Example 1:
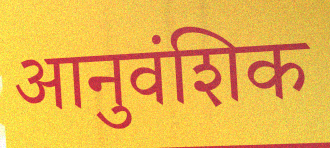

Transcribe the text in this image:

आनुवंशिक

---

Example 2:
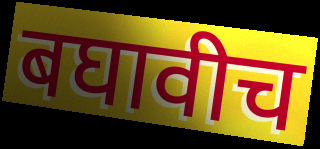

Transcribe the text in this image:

बघावीच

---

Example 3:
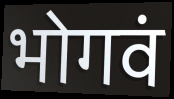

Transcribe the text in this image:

भोगवं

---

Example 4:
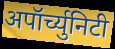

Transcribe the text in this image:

अपॉर्च्युनिटी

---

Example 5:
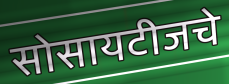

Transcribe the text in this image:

सोसायटीजचे